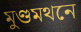
মুণ্ডমথনে